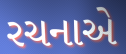
રચનાએ